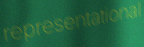
representational